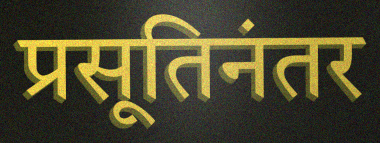
प्रसूतिनंतर